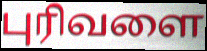
புரிவளை